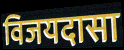
विजयदासा